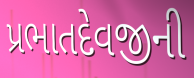
પ્રભાતદેવજીની